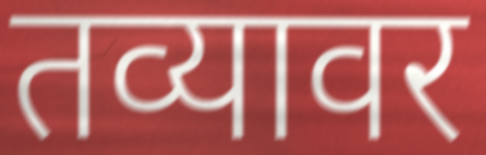
तव्यावर